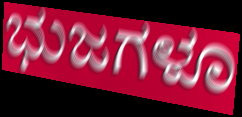
ಭುಜಗಳೂ